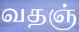
வதஞ்